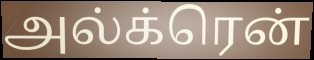
அல்க்ரென்